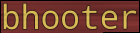
bhooter